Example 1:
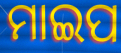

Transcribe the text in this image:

ମାଇପ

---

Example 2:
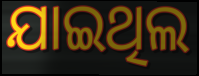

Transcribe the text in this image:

ଯାଇଥିଲ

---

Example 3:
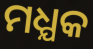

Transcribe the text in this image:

ମଧ୍ଯକ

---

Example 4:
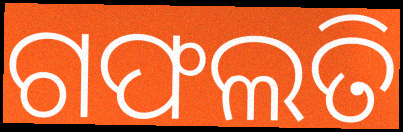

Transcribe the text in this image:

ଗଫଲତି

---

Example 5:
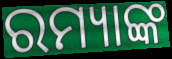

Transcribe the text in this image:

ରମ୍ୟାଙ୍କ